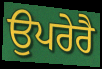
ਉਪਰੇਰੈ